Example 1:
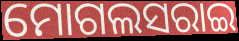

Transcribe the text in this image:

ମୋଗଲସରାଇ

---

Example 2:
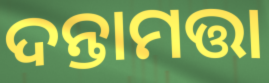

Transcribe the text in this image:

ଦନ୍ତାମତ୍ତା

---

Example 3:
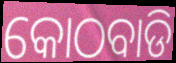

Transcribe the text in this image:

କୋଠବାଡି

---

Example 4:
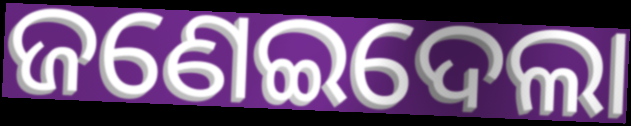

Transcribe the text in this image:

ଜଣେଇଦେଲା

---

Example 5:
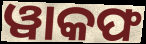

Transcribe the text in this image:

ୱାକଫ